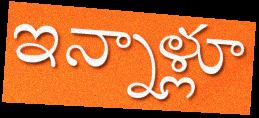
ఇన్నాళ్లూ